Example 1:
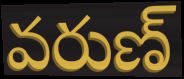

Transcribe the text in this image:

వరుణ్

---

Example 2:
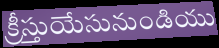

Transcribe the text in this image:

క్రీస్తుయేసునుండియు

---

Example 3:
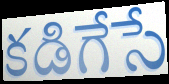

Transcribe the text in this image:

కడిగేసే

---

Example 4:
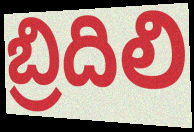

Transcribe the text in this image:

బ్రిదిలి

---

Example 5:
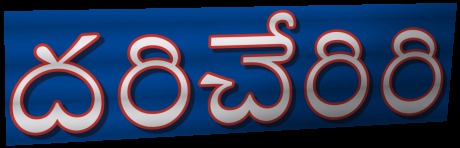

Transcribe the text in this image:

దరిచేరిరి